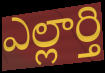
ఎల్లార్తి